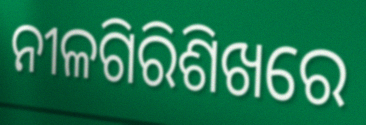
ନୀଳଗିରିଶିଖରେ